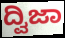
ದ್ವಿಜಾ